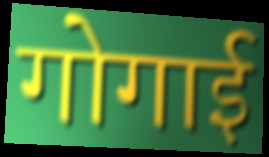
गोगाई